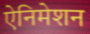
ऐनिमेशन